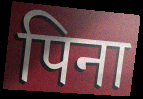
पिना